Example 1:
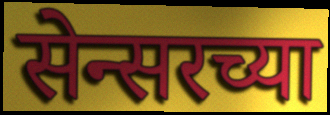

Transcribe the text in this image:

सेन्सरच्या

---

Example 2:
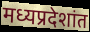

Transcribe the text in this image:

मध्यप्रदेशांत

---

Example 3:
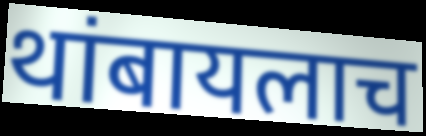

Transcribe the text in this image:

थांबायलाच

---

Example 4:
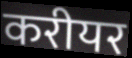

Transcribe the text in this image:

करीयर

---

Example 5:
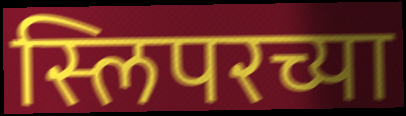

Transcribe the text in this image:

स्लिपरच्या